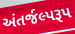
અંતર્જલ્પરૂપ